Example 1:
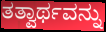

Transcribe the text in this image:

ತತ್ವಾರ್ಥವನ್ನು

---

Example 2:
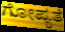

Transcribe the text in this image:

ಗೋಪ್ಯತೆ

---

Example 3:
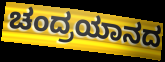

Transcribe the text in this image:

ಚಂದ್ರಯಾನದ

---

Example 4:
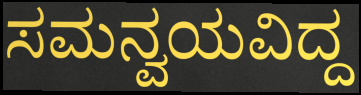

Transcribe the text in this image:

ಸಮನ್ವಯವಿದ್ದ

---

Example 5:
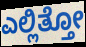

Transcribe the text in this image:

ಎಲ್ಲಿತ್ತೋ